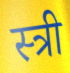
स्त्री